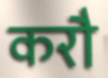
करौ